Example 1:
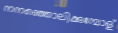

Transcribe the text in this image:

നനഞ്ഞൊലിക്കുമ്പോള്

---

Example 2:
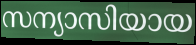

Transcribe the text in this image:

സന്യാസിയായ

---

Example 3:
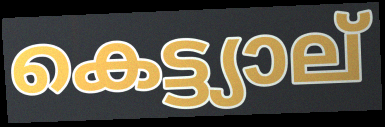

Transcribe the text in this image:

കെട്ട്യാല്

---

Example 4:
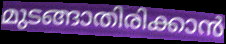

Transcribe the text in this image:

മുടങ്ങാതിരിക്കാൻ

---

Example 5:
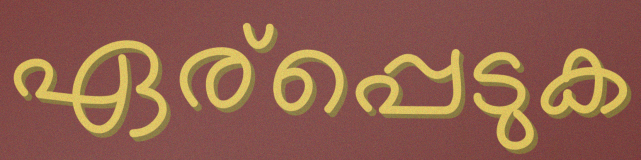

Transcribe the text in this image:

ഏര്പ്പെടുക